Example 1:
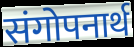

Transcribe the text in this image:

संगोपनार्थ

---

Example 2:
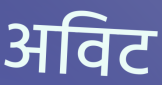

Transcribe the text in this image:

अविट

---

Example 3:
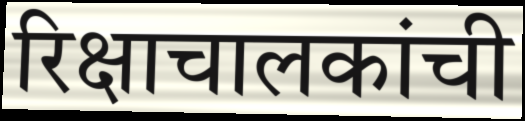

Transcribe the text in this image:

रिक्षाचालकांची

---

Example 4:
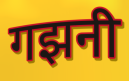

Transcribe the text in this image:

गझनी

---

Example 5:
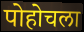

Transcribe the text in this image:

पोहोचला